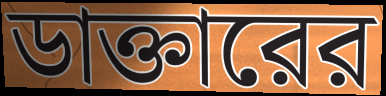
ডাক্তারের